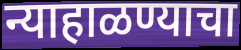
न्याहाळण्याचा